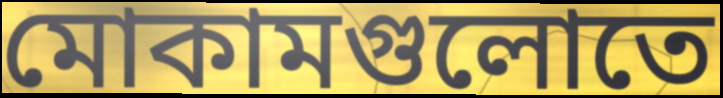
মোকামগুলোতে